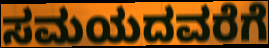
ಸಮಯದವರೆಗೆ